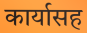
कार्यासह